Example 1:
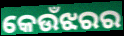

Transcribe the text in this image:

କେଉଁଝରର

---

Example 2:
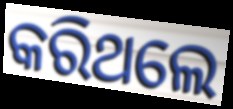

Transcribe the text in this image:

କରିଥଲେ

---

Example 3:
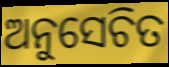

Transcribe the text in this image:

ଅନୁସେଚିତ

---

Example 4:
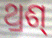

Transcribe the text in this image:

ଥ୍ରଶ୍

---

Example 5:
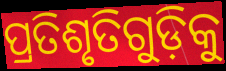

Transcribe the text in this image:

ପ୍ରତିଶୃତିଗୁଡ଼ିକୁ